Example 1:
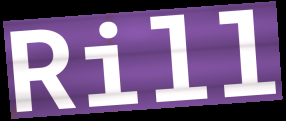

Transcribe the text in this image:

Rill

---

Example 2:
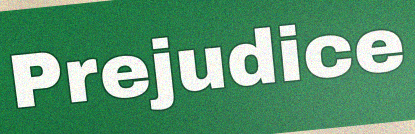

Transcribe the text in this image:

Prejudice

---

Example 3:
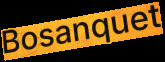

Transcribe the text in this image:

Bosanquet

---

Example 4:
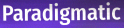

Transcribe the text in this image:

Paradigmatic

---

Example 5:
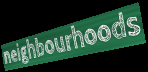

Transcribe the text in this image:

neighbourhoods